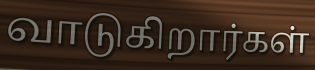
வாடுகிறார்கள்